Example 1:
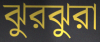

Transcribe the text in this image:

ঝুরঝুরা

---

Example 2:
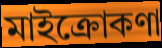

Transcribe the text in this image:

মাইক্রোকণা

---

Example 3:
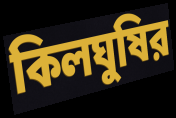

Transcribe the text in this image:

কিলঘুষির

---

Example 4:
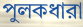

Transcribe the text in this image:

পুলকধারা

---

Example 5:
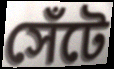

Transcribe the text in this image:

সেঁটে